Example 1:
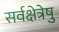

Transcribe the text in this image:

सर्वक्षेत्रेषु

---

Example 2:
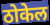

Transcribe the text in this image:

ठोकेल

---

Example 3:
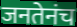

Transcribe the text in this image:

जनतेनंच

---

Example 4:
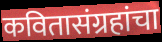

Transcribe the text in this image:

कवितासंग्रहांचा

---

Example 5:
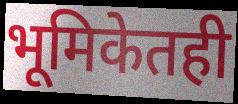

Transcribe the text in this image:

भूमिकेतही